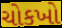
ચોકખો